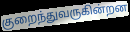
குறைந்துவருகின்றன